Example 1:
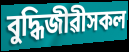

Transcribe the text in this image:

বুদ্ধিজীৱীসকল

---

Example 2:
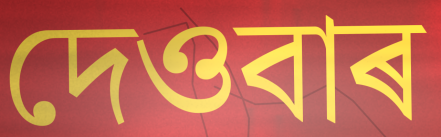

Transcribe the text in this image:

দেওবাৰ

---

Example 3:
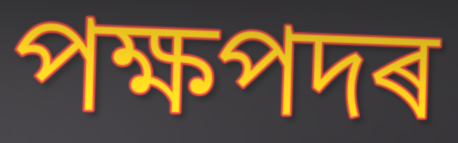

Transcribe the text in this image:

পক্ষপদৰ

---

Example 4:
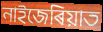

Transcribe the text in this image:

নাইজেৰিয়াত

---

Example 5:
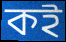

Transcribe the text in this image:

কই